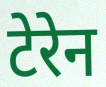
टेरेन